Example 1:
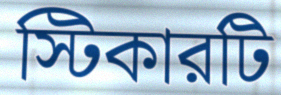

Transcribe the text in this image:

স্টিকারটি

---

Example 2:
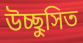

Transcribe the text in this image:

উচ্ছুসিত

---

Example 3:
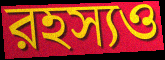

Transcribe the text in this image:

রহস্যও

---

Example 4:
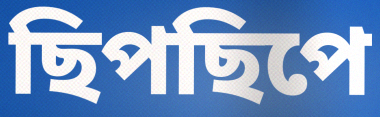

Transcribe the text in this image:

ছিপছিপে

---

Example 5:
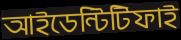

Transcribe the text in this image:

আইডেন্টিটিফাই